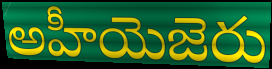
అహీయెజెరు